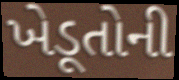
ખેડૂતોની